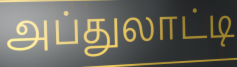
அப்துலாட்டி